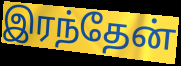
இரந்தேன்